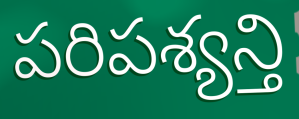
పరిపశ్యన్తి